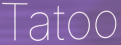
Tatoo